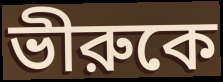
ভীরুকে